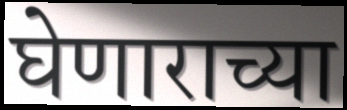
घेणाराच्या